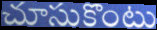
చూసుకొంటు